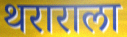
थराराला